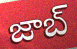
జాబ్